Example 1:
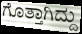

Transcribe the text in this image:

ಗೊತ್ತಾಗಿದ್ದು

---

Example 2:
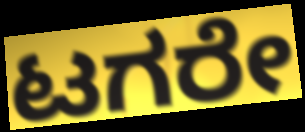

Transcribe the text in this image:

ಟಗರೇ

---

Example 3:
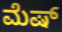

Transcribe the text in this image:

ಮೆಷ್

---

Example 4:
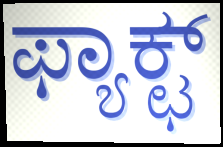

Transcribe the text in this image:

ಫ್ಯಾಕ್ಟ್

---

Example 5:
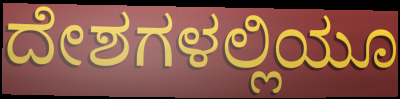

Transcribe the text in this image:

ದೇಶಗಳಲ್ಲಿಯೂ